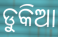
ଡୁକିଆ